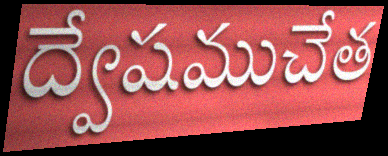
ద్వేషముచేత